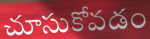
చూసుకోవడం